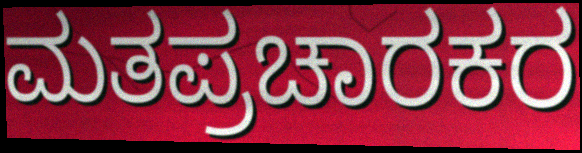
ಮತಪ್ರಚಾರಕರ